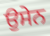
ਉਸੇਨ